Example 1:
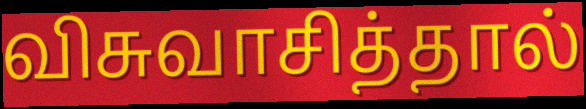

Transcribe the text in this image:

விசுவாசித்தால்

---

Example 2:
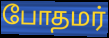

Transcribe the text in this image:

போதமர்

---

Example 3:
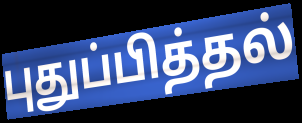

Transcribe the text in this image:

புதுப்பித்தல்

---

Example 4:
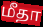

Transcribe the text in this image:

மீதா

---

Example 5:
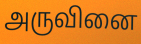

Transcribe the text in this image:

அருவினை